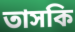
তাসকি